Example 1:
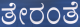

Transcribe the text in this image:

ತೇರಂತೆ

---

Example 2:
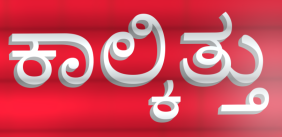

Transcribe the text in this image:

ಕಾಲ್ಕಿತ್ತು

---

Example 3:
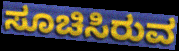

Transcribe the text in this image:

ಸೂಚಿಸಿರುವ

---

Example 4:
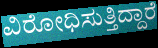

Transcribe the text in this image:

ವಿರೋಧಿಸುತ್ತಿದ್ದಾರೆ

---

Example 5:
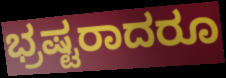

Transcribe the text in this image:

ಭ್ರಷ್ಟರಾದರೂ